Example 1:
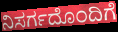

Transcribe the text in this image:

ನಿಸರ್ಗದೊಂದಿಗೆ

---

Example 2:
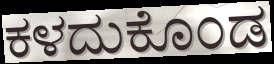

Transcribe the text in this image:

ಕಳದುಕೊಂಡ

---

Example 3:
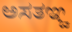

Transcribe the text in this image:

ಅಸತಞ್ಚ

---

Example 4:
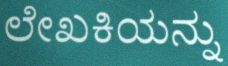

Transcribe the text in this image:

ಲೇಖಕಿಯನ್ನು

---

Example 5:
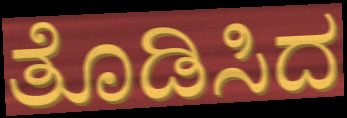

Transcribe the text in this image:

ತೊಡಿಸಿದ